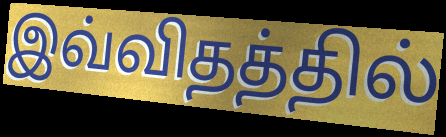
இவ்விதத்தில்